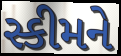
સ્કીમને